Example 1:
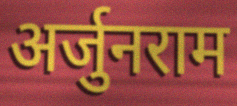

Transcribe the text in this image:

अर्जुनराम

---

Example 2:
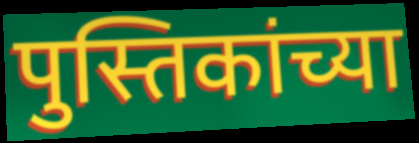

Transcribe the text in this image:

पुस्तिकांच्या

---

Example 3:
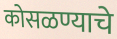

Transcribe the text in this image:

कोसळण्याचे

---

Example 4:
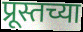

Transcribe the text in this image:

प्रूस्तच्या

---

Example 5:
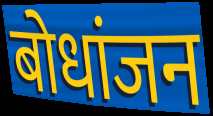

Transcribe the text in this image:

बोधांजन